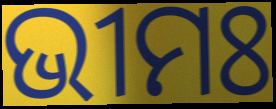
ଭୀମଃ